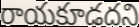
రాయకూడదని